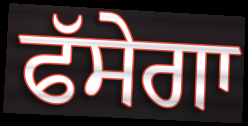
ਫੱਸੇਗਾ